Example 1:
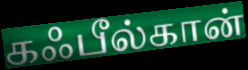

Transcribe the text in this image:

கஃபீல்கான்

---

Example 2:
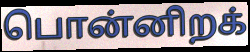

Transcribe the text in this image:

பொன்னிறக்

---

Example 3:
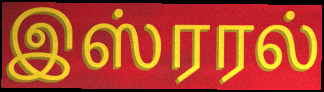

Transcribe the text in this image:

இஸ்ரரல்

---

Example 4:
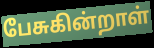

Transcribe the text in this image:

பேசுகின்றாள்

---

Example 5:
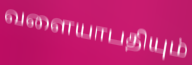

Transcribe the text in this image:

வளையாபதியும்